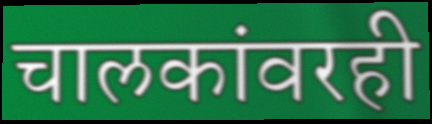
चालकांवरही